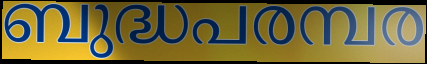
ബുദ്ധപരമ്പര